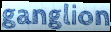
ganglion